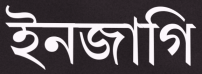
ইনজাগি